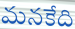
మనకేది